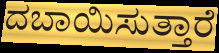
ದಬಾಯಿಸುತ್ತಾರೆ